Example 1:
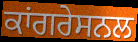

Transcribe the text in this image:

ਕਾਂਗਰੇਸਨਲ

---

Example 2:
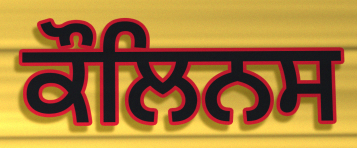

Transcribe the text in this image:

ਕੌਲਿਨਸ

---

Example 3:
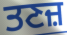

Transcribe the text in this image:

ਤਣਜ਼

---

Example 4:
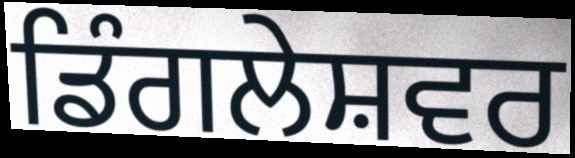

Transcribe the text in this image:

ਡਿੰਗਲੇਸ਼ਵਰ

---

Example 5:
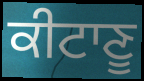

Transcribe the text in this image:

ਕੀਟਾਣੂ